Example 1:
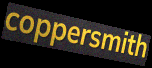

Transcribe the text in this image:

coppersmith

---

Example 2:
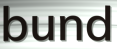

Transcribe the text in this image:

bund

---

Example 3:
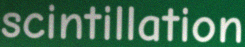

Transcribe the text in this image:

scintillation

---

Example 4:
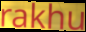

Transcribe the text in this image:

rakhu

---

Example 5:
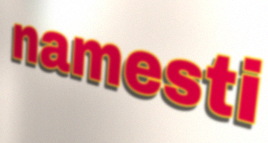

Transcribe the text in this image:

namesti